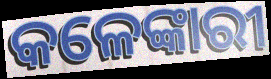
କଳେଙ୍କାରୀ